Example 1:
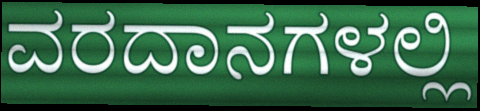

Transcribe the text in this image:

ವರದಾನಗಳಲ್ಲಿ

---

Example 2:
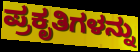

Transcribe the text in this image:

ಪ್ರಕೃತಿಗಳನ್ನು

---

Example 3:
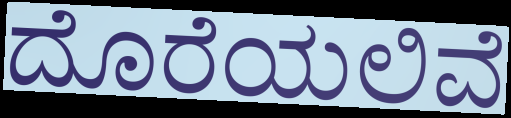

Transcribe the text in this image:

ದೊರೆಯಲಿವೆ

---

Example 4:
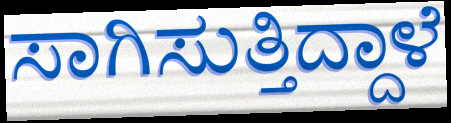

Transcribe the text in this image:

ಸಾಗಿಸುತ್ತಿದ್ದಾಳೆ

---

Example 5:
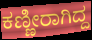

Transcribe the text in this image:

ಕಣ್ಣೀರಾಗಿದ್ದ